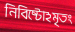
নিবিষ্টোঽমৃতং